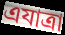
এযাত্রা